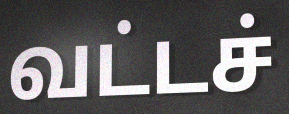
வட்டச்